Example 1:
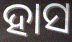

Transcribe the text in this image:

ହାସ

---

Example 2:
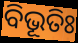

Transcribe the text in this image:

ବିଭୂତିଃ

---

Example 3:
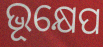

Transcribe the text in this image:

ଭୂକ୍ଷେପ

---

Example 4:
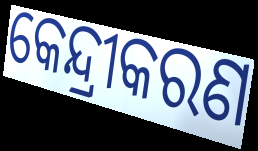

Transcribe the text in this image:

କେନ୍ଦ୍ରୀକରଣ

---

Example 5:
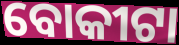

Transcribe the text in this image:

ବୋକୀଟା